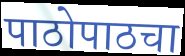
पाठोपाठचा